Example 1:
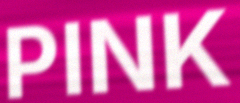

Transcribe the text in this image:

PINK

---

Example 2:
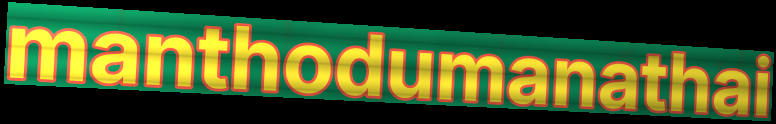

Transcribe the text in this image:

manthodumanathai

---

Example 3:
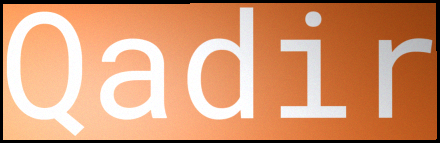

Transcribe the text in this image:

Qadir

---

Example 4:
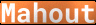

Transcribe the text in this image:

Mahout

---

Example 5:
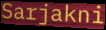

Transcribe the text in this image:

Sarjakni